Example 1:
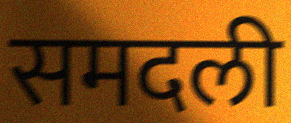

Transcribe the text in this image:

समदली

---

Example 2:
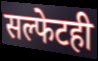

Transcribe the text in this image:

सल्फेटही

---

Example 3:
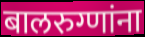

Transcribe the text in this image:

बालरुग्णांना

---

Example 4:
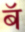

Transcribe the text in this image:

बॅ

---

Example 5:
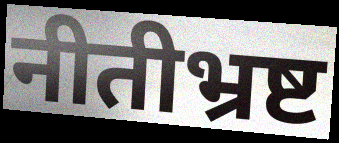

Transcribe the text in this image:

नीतीभ्रष्ट